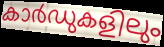
കാർഡുകളിലും